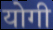
योगी